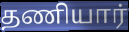
தணியார்